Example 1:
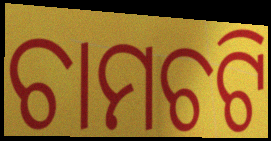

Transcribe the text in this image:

ଚାମଚଟି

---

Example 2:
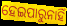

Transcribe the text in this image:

ହେଇପାରୁନାହିଁ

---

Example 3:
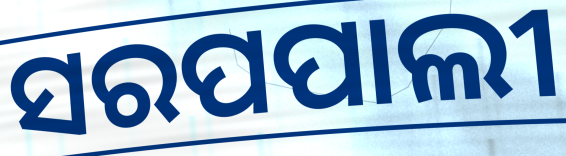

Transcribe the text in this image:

ସରପପାଲୀ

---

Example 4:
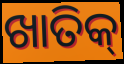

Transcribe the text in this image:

ଖାତିକ୍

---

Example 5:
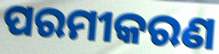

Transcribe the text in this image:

ପରମୀକରଣ